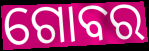
ଗୋବର